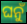
ଘନୁଁ